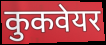
कुकवेयर